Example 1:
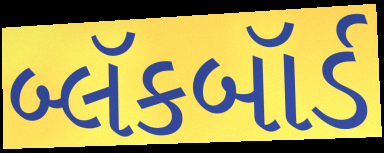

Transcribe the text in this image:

બ્લૅકબૉર્ડ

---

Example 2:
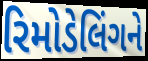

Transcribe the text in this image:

રિમોડેલિંગને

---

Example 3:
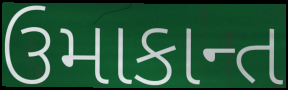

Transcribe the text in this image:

ઉમાકાન્ત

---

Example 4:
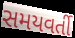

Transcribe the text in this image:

સમયવર્તી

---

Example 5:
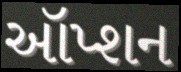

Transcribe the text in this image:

ઑપ્શન